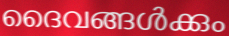
ദൈവങ്ങൾക്കും